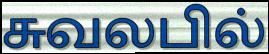
சுவலபில்